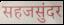
सहजसुंदर